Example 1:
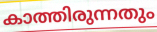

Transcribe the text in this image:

കാത്തിരുന്നതും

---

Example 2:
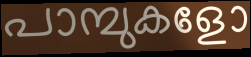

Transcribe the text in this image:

പാമ്പുകളോ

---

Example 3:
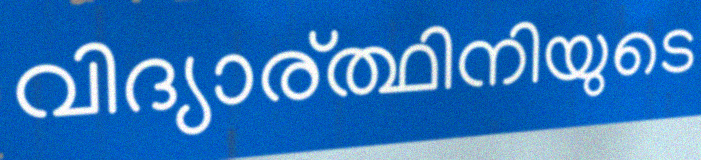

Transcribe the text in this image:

വിദ്യാര്ത്ഥിനിയുടെ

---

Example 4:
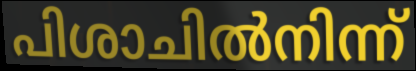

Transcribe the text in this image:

പിശാചിൽനിന്ന്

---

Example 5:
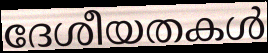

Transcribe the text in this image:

ദേശീയതകൾ